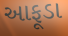
આફૂડા